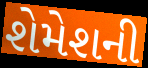
શેમેશની